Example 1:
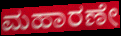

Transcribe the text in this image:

ಮಹಾರಣೇ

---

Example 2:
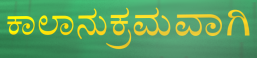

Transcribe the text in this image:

ಕಾಲಾನುಕ್ರಮವಾಗಿ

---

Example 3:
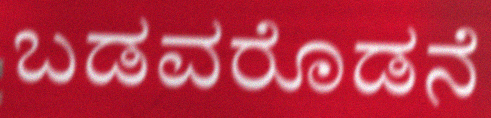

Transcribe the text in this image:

ಬಡವರೊಡನೆ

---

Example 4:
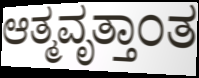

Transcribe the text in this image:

ಆತ್ಮವೃತ್ತಾಂತ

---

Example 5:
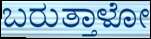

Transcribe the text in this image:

ಬರುತ್ತಾಳೋ